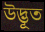
উদ্ভূত